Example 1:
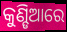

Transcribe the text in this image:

କୁଣ୍ଡିଆରେ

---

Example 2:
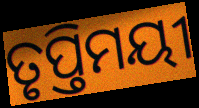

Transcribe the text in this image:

ତୃପ୍ତିମୟୀ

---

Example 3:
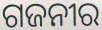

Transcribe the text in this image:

ଗଜନୀର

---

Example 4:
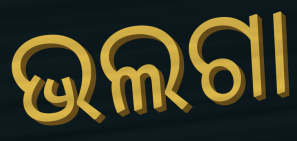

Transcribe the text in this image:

ଭଲଗା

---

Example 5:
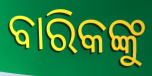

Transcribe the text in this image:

ବାରିକଙ୍କୁ